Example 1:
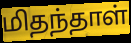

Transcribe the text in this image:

மிதந்தாள்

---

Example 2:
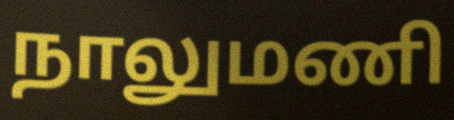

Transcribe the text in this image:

நாலுமணி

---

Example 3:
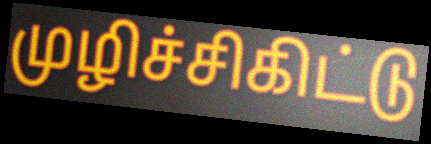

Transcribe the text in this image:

முழிச்சிகிட்டு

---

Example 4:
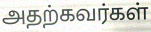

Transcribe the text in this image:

அதற்கவர்கள்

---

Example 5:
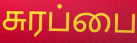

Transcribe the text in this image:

சுரப்பை